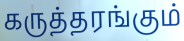
கருத்தரங்கும்